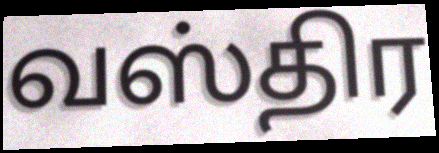
வஸ்திர